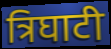
त्रिघाटी